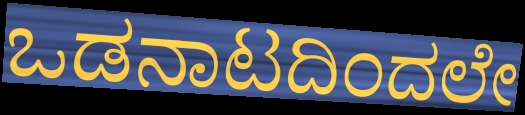
ಒಡನಾಟದಿಂದಲೇ